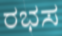
ರಭಸ